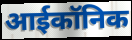
आईकॉनिक